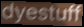
dyestuff